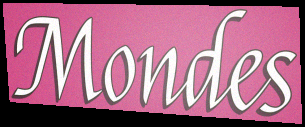
Mondes